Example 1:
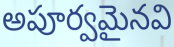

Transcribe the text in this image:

అపూర్వమైనవి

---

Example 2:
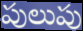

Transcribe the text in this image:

పులుపు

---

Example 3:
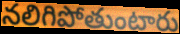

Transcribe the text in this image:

నలిగిపోతుంటారు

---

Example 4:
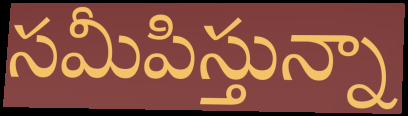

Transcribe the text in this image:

సమీపిస్తున్నా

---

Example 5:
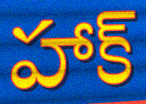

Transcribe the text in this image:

హాక్